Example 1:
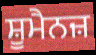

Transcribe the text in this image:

ਸ਼ੂਮੈਨਜ਼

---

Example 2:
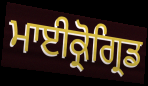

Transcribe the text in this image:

ਮਾਈਕ੍ਰੋਗ੍ਰਿਡ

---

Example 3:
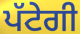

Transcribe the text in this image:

ਪੱਟੇਗੀ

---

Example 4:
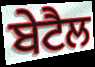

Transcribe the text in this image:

ਬੇਟੈਲ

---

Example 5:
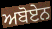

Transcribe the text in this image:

ਅਬੋਏਨ